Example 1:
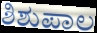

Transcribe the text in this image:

ಶಿಶುಪಾಲ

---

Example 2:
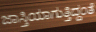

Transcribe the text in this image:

ಜಾಸ್ತಿಯಾಗುತ್ತಿದ್ದಂತೆ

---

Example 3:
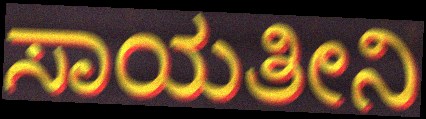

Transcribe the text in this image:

ಸಾಯತೀನಿ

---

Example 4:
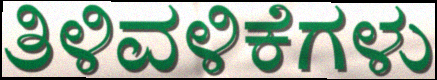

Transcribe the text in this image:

ತಿಳಿವಳಿಕೆಗಳು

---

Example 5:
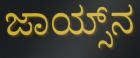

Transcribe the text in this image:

ಜಾಯ್ಸ್‌ನ